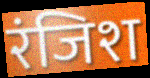
रंजिश